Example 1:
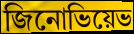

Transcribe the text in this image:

জিনোভিয়েভ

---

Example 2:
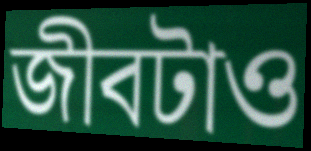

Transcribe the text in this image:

জীবটাও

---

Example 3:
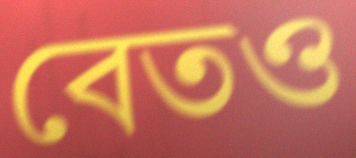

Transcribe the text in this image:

বেতও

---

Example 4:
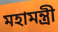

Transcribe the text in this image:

মহামন্ত্রী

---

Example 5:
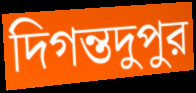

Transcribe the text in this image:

দিগন্তদুপুর